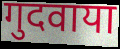
गुदवाया